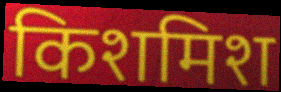
किशमिश